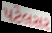
પટેલસર